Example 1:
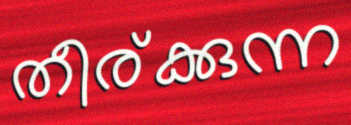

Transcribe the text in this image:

തീര്ക്കുന്ന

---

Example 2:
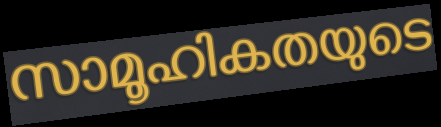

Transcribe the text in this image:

സാമൂഹികതയുടെ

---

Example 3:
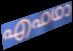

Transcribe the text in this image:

എഫഥാ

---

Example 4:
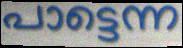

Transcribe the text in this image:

പാട്ടെന്ന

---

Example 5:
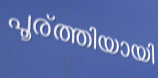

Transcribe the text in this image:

പൂര്ത്തിയായി